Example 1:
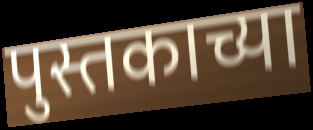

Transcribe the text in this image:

पुस्तकाच्या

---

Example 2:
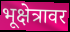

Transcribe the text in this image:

भूक्षेत्रावर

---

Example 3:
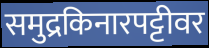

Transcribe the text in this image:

समुद्रकिनारपट्टीवर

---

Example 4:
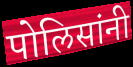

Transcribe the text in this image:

पोलिसांनी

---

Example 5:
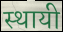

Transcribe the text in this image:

स्थायी